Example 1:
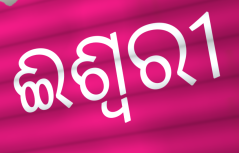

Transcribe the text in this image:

ଈଶ୍ଵରୀ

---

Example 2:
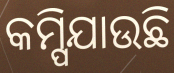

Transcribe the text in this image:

କମ୍ପିଯାଉଛି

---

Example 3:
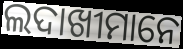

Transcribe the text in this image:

ଲଦାଖୀମାନେ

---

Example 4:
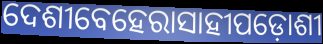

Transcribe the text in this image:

ଦେଶୀବେହେରାସାହୀପଡ଼ୋଶୀ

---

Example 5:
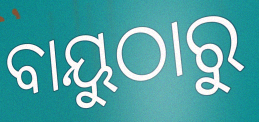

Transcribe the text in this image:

ବାୟୁଠାରୁ